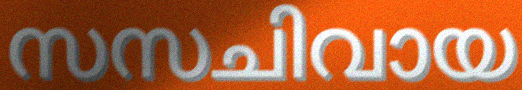
സസചിവായ